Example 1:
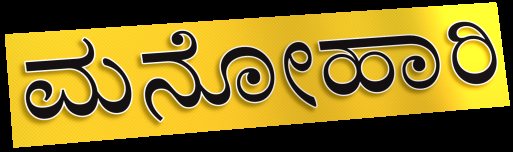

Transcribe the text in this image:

ಮನೋಹಾರಿ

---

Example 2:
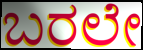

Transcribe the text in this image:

ಬರಲೇ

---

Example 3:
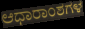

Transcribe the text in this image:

ಆಧಾರಾಂಶಗಳ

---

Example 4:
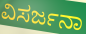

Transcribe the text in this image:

ವಿಸರ್ಜನಾ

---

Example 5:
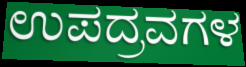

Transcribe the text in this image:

ಉಪದ್ರವಗಳ